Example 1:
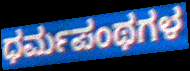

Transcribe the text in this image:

ಧರ್ಮಪಂಥಗಳ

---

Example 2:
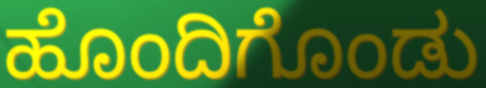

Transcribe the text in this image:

ಹೊಂದಿಗೊಂಡು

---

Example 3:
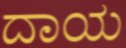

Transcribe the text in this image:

ದಾಯ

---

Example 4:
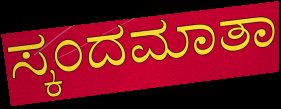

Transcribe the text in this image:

ಸ್ಕಂದಮಾತಾ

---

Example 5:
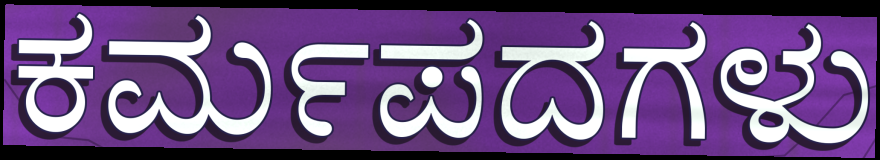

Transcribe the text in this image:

ಕರ್ಮಪದಗಳು